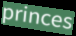
princes